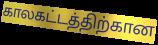
காலகட்டத்திற்கான